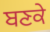
ਬਣਕੇ